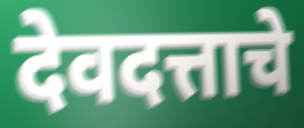
देवदत्ताचे